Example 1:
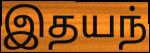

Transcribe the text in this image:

இதயந்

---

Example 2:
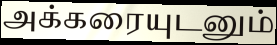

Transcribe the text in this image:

அக்கரையுடனும்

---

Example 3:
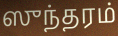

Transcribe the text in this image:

ஸுந்தரம்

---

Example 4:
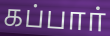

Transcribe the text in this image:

கப்பார்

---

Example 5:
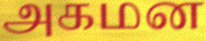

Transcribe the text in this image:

அகமன